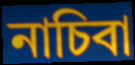
নাচিবা